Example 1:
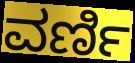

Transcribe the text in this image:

ವರ್ಣಿ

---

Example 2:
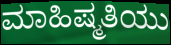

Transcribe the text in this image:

ಮಾಹಿಷ್ಮತಿಯು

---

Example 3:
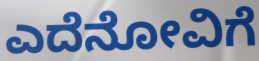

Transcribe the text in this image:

ಎದೆನೋವಿಗೆ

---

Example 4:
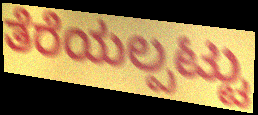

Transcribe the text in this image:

ತೆರೆಯಲ್ಪಟ್ಟು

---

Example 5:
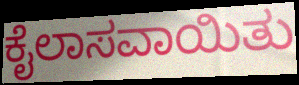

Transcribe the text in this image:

ಕೈಲಾಸವಾಯಿತು